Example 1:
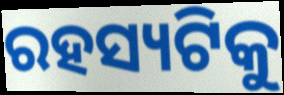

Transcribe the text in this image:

ରହସ୍ୟଟିକୁ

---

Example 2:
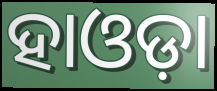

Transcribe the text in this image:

ହାଓଡ଼ା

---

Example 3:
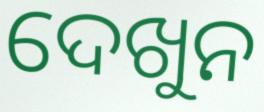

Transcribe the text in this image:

ଦେଖୁନ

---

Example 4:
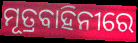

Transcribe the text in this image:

ମୂତ୍ରବାହିନୀରେ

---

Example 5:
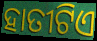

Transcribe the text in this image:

ହାତୀଟିଏ